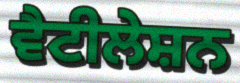
ਵੈਟੀਲੇਸ਼ਨ